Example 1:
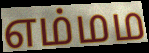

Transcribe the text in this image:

எம்மம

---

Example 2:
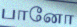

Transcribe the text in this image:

பானோ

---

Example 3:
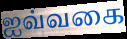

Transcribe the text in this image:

ஐவ்வகை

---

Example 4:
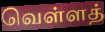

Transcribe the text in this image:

வெள்ளத்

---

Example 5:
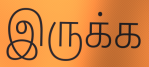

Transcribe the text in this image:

இருக்க